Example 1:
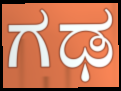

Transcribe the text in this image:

ಗಢ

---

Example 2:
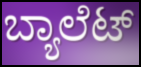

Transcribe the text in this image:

ಬ್ಯಾಲೆಟ್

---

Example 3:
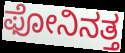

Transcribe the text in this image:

ಫೋನಿನತ್ತ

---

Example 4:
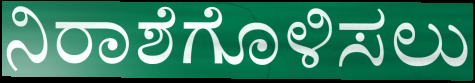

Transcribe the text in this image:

ನಿರಾಶೆಗೊಳಿಸಲು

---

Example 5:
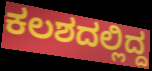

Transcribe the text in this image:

ಕಲಶದಲ್ಲಿದ್ದ